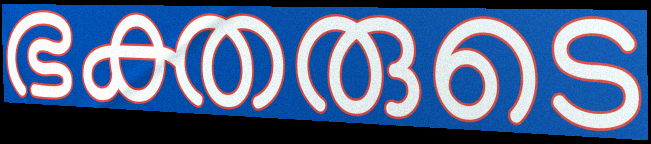
ഭക്തരുടെ